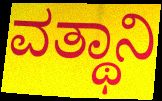
ವತ್ಥಾನಿ